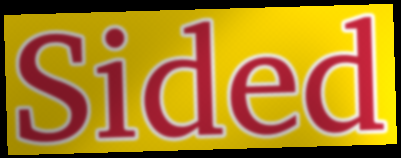
Sided